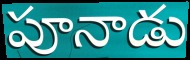
పూనాడు